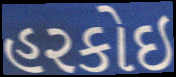
હરકોઇ